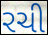
રચી